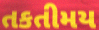
તકતીમય